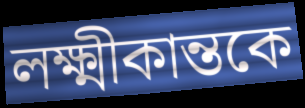
লক্ষ্মীকান্তকে